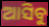
ଆସିବୁ